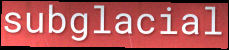
subglacial